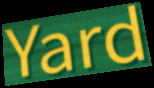
Yard